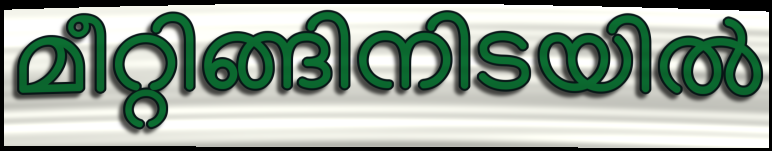
മീറ്റിങ്ങിനിടയിൽ